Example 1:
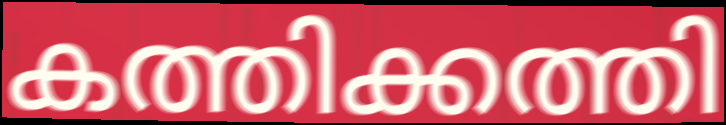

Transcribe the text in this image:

കത്തിക്കത്തി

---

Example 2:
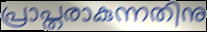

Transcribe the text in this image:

പ്രാപ്തരാകുന്നതിനു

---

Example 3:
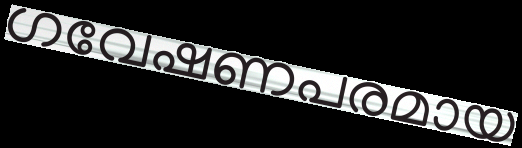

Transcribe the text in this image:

ഗവേഷണപരമായ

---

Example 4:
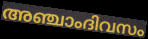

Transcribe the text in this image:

അഞ്ചാംദിവസം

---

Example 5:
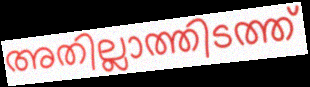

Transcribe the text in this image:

അതില്ലാത്തിടത്ത്